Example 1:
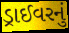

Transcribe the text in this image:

ડ્રાઈવરનું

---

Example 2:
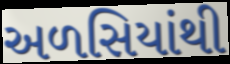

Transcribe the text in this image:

અળસિયાંથી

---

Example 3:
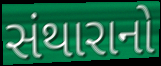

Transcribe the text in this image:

સંથારાનો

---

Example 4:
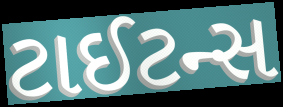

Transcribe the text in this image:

ટાઈટન્સ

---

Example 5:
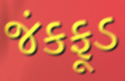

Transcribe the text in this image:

જંકફૂડ